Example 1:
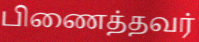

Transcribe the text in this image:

பிணைத்தவர்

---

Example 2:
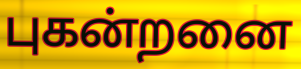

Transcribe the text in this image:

புகன்றனை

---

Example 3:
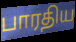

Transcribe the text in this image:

பாரதிய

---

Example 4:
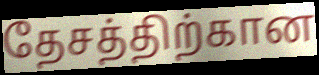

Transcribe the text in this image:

தேசத்திற்கான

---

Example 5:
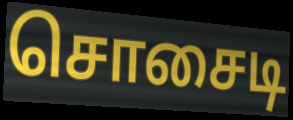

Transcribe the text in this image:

சொசைடி